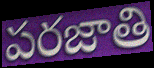
పరజాతి